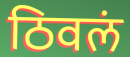
ठिवलं